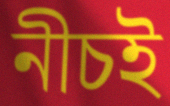
নীচই